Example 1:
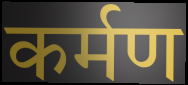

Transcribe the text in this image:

कर्मण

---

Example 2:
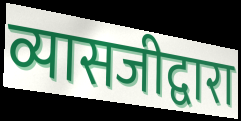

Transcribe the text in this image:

व्यासजीद्वारा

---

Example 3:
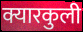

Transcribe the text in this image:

क्यारकुली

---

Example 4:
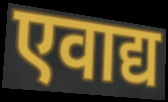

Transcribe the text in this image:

एवाद्य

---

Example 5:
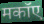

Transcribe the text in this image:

मकॉए